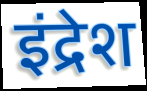
इंद्रेश